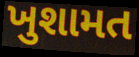
ખુશામત